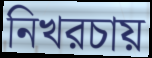
নিখরচায়